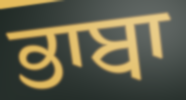
ਭਾਬਾ